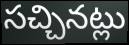
సచ్చినట్లు